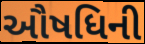
ઔષધિની